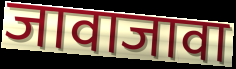
जावाजावा